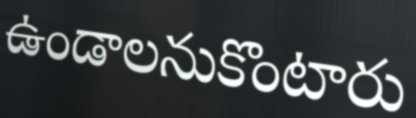
ఉండాలనుకొంటారు